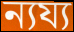
ন্যয্য